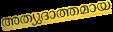
അത്യുദാത്തമായ